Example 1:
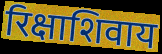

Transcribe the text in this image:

रिक्षाशिवाय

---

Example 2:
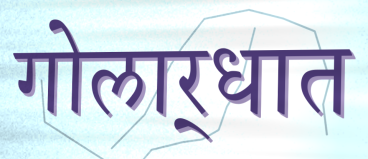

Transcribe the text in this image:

गोलार्धात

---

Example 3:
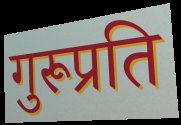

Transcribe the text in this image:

गुरूप्रति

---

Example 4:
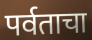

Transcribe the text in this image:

पर्वताचा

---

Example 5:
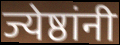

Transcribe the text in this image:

ज्येष्ठांनी